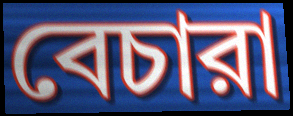
বেচারা